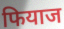
फियाज